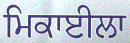
ਮਿਕਾਈਲਾ